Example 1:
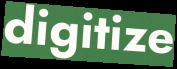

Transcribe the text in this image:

digitize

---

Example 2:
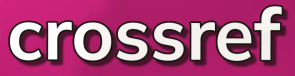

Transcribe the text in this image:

crossref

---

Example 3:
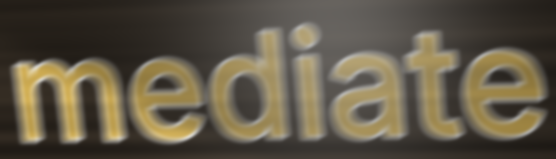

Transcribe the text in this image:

mediate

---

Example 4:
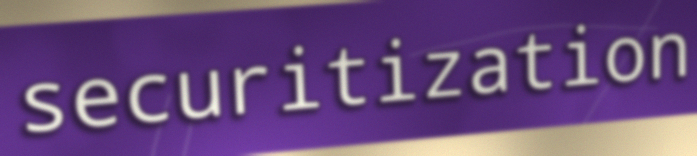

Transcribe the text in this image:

securitization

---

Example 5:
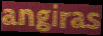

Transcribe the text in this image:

angiras